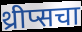
थ्रीप्सचा